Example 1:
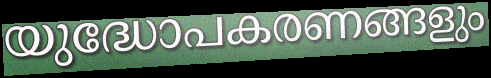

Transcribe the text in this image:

യുദ്ധോപകരണങ്ങളും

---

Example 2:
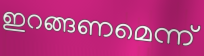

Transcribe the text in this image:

ഇറങ്ങണമെന്ന്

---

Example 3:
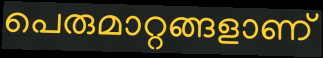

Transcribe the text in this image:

പെരുമാറ്റങ്ങളാണ്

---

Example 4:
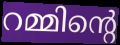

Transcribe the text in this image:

റമ്മിന്റെ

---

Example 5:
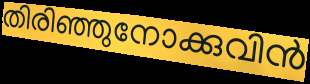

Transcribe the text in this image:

തിരിഞ്ഞുനോക്കുവിൻ